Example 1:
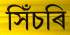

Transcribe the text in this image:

সিঁচৰি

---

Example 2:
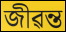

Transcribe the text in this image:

জীৱন্ত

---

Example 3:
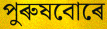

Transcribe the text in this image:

পুৰুষবোৰে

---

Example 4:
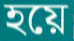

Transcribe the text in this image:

হয়ে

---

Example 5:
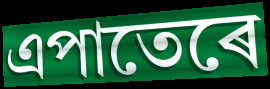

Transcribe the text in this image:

এপাতেৰে